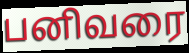
பனிவரை